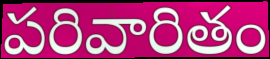
పరివారితం